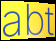
abt